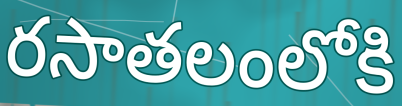
రసాతలంలోకి